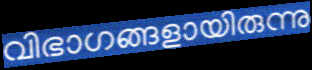
വിഭാഗങ്ങളായിരുന്നു